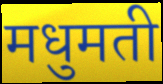
मधुमती